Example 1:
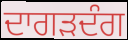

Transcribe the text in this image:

ਦਾਗੜਦੰਗ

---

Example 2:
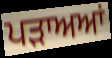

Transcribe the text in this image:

ਪੜਾਅਆਂ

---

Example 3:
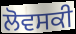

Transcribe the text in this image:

ਲੋਵਸਕੀ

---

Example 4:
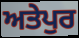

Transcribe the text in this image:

ਅਤੇਪੁਰ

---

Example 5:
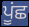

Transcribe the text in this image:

ਪੂਂਛ